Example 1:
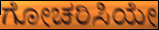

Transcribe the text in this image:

ಗೋಚರಿಸಿಯೇ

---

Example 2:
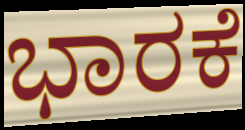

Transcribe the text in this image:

ಭಾರಕೆ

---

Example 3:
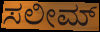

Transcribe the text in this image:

ಸಲೀಮ್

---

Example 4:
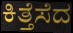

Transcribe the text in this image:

ಕಿತ್ತೆಸೆದ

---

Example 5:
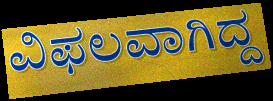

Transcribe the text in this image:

ವಿಫಲವಾಗಿದ್ದ